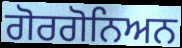
ਗੋਰਗੋਨਿਅਨ